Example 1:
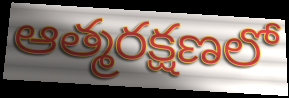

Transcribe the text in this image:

ఆత్మరక్షణలో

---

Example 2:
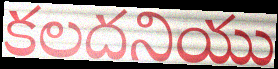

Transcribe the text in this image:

కలదనియు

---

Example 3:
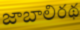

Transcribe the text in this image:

జాబాలిరథ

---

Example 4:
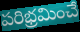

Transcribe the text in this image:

పరిభ్రమించే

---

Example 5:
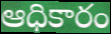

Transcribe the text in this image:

ఆధికారం